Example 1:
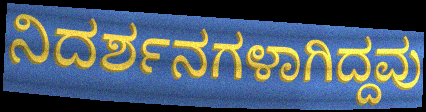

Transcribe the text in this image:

ನಿದರ್ಶನಗಳಾಗಿದ್ದವು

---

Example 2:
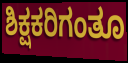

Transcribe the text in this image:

ಶಿಕ್ಷಕರಿಗಂತೂ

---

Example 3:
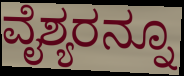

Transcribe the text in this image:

ವೈಶ್ಯರನ್ನೂ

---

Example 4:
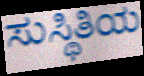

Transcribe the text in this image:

ಸುಸ್ಥಿತಿಯ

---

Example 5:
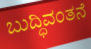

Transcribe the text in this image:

ಬುದ್ಧಿವಂತನೆ